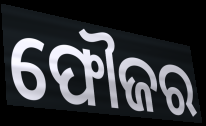
ଫୌଜର